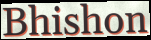
Bhishon